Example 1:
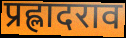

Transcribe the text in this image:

प्रह्लादराव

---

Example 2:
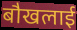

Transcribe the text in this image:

बौखलाई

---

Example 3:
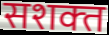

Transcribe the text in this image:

सशक्‍त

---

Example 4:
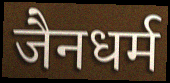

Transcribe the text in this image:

जैनधर्म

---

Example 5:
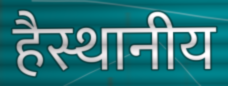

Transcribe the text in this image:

हैस्थानीय